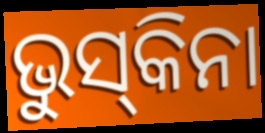
ଭୁସ୍‌କିନା